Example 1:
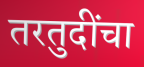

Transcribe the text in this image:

तरतुदींचा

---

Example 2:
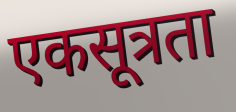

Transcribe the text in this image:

एकसूत्रता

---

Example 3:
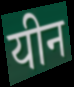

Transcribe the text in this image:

यीन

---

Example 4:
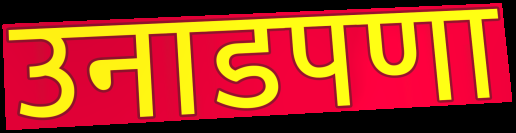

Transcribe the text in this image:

उनाडपणा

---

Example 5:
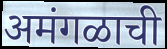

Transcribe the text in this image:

अमंगळाची